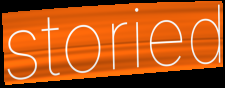
storied